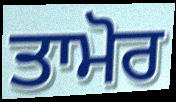
ਤਾਮੋਰ